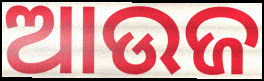
ଆଉଜ